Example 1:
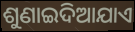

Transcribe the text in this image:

ଶୁଣାଇଦିଆଯାଏ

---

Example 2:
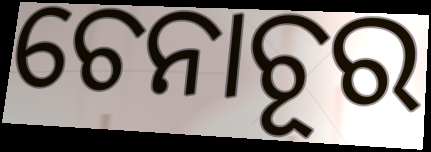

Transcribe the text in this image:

ଚେନାଚୂର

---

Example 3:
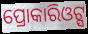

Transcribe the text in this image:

ପ୍ରୋକାରିଓଟ୍ସ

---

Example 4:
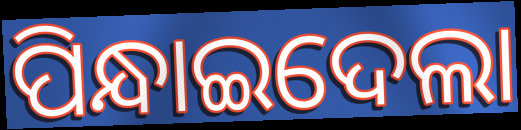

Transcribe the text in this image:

ପିନ୍ଧାଇଦେଲା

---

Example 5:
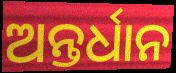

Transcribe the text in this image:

ଅନ୍ତର୍ଧାନ